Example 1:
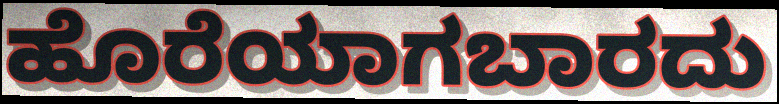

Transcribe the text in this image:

ಹೊರೆಯಾಗಬಾರದು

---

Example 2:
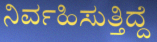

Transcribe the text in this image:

ನಿರ್ವಹಿಸುತ್ತಿದ್ದೆ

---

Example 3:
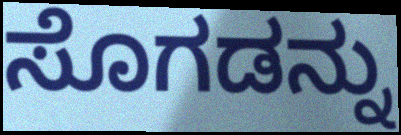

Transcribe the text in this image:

ಸೊಗಡನ್ನು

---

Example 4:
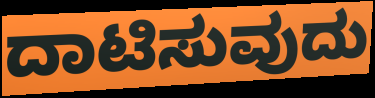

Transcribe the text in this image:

ದಾಟಿಸುವುದು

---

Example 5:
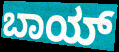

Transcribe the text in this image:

ಬಾಯ್